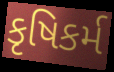
કૃષિકર્મ